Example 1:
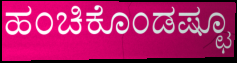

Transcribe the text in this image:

ಹಂಚಿಕೊಂಡಷ್ಟೂ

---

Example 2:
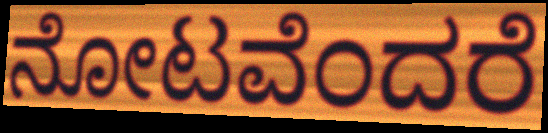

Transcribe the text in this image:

ನೋಟವೆಂದರೆ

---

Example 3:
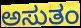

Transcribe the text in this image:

ಅಸುತಂ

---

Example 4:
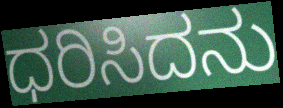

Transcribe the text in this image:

ಧರಿಸಿದನು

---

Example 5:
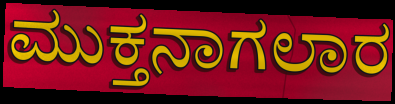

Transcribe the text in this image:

ಮುಕ್ತನಾಗಲಾರ